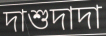
দাশুদাদা